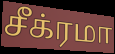
சீக்ரமா